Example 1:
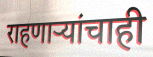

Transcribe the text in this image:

राहणाऱ्यांचाही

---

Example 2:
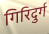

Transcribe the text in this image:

गिरिदुर्ग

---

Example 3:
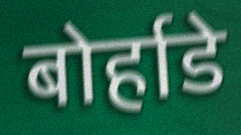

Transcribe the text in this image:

बोर्हाडे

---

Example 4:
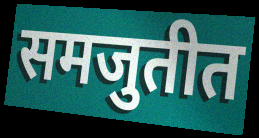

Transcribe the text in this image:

समजुतीत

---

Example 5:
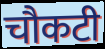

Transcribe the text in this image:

चौकटी